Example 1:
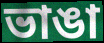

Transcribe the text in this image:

ভাঙা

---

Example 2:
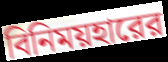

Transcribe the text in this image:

বিনিময়হারের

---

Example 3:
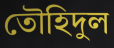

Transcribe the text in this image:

তৌহিদুল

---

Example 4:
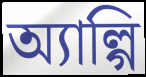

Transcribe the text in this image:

অ্যাল্গি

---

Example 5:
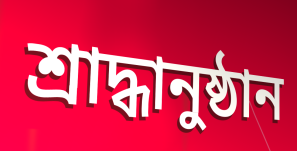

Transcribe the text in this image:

শ্রাদ্ধানুষ্ঠান